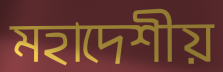
মহাদেশীয়